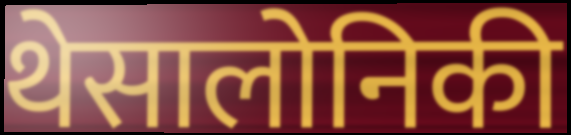
थेसालोनिकी